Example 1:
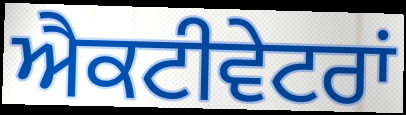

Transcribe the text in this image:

ਐਕਟੀਵੇਟਰਾਂ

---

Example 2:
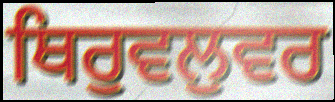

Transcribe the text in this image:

ਥਿਰੁਵਲੁਵਰ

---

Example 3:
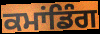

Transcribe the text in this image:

ਕਮਾਂਡਿੰਗ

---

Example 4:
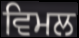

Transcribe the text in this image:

ਵਿਮਲ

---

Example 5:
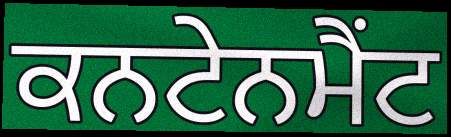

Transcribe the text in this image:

ਕਨਟੇਨਮੈਂਟ